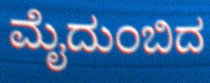
ಮೈದುಂಬಿದ